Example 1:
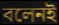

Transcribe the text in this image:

বলেনই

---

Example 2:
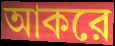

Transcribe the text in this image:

আকরে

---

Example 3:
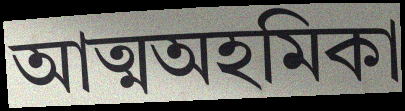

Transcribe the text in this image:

আত্মঅহমিকা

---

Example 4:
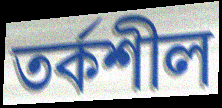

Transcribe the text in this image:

তর্কশীল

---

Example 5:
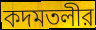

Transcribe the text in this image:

কদমতলীর